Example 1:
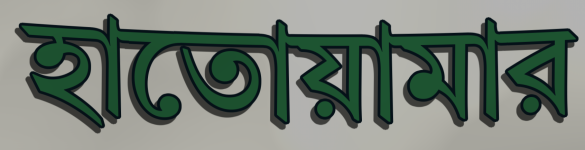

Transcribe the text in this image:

হাতোয়ামার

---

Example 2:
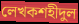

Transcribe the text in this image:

লেখকশহীদুল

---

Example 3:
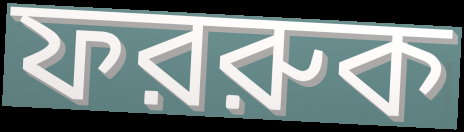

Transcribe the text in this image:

ফররুক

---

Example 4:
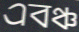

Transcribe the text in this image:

এবঞ্চ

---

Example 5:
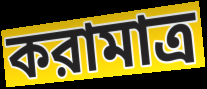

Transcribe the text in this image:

করামাত্র